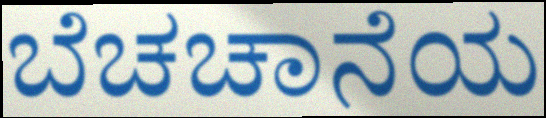
ಬೆಚಚಾನೆಯ